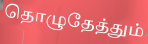
தொழுதேத்தும்